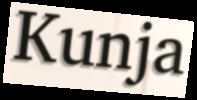
Kunja